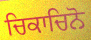
ਚਿਕਾਚਿਨੋ